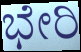
ಭೇರಿ